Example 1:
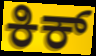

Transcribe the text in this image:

ಕಿಕ್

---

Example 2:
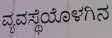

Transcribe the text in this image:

ವ್ಯವಸ್ಥೆಯೊಳಗಿನ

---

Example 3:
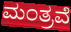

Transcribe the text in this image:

ಮಂತ್ರವೆ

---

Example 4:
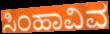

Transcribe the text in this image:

ಸಿಂಹಾವಿವ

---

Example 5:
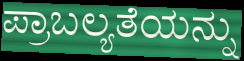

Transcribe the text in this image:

ಪ್ರಾಬಲ್ಯತೆಯನ್ನು